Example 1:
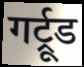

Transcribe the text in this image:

गर्ट्रूड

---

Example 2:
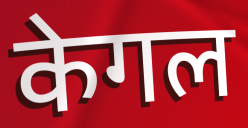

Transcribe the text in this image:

केगल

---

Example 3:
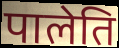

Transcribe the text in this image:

पालेति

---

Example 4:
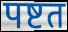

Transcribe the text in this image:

पष्टत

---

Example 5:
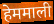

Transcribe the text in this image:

हेममाली